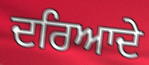
ਦਰਿਆਦੇ